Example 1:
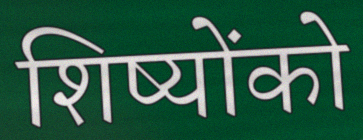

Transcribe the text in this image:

शिष्योंको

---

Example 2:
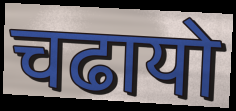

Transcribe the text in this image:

चढायो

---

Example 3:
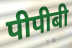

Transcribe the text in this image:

पीपीबी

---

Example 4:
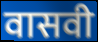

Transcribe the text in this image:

वासवी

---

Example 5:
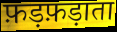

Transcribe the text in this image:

फ़ड़फ़ड़ाता